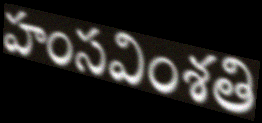
హంసవింశతి